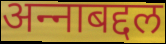
अन्‍नाबद्दल